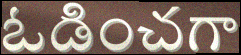
ఓడించగా